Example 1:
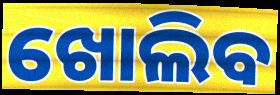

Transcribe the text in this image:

ଖୋଲିବ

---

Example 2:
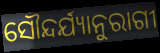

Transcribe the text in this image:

ସୌନ୍ଦର୍ଯ୍ୟାନୁରାଗୀ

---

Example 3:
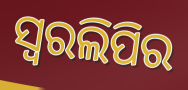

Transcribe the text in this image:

ସ୍ୱରଲିପିର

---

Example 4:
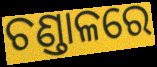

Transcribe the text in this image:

ଚଣ୍ଡାଳରେ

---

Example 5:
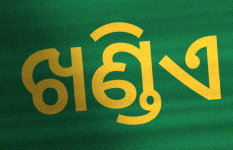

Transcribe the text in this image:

ଖଣ୍ଡିଏ